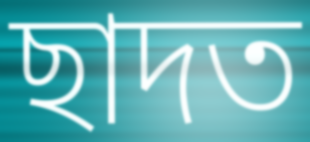
ছাদত